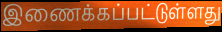
இணைக்கப்பட்டுள்ளது